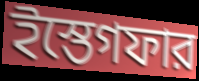
ইস্তেগফার